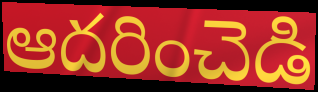
ఆదరించెడి